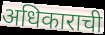
अधिकाराची